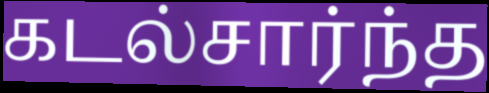
கடல்சார்ந்த